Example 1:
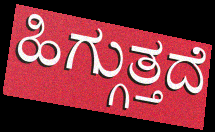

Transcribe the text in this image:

ಹಿಗ್ಗುತ್ತದೆ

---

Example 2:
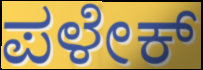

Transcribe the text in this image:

ಪಳೇಕ್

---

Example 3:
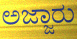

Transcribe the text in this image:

ಅಜ್ಜಾರು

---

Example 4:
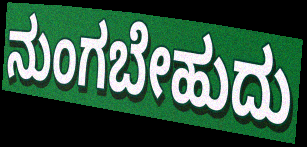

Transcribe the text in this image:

ನುಂಗಬೇಹುದು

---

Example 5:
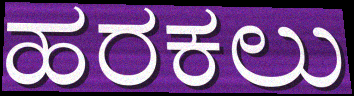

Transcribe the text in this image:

ಹರಕಲು